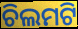
ଚିଲମଟି